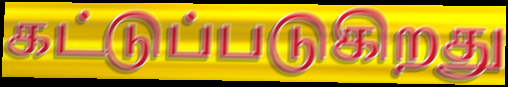
கட்டுப்படுகிறது